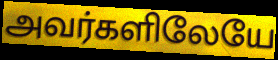
அவர்களிலேயே